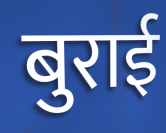
बुराई